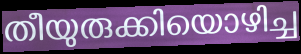
തീയുരുക്കിയൊഴിച്ച